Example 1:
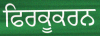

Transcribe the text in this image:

ਫਿਰਕੂਕਰਨ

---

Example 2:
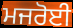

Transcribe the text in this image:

ਮਜਰੋਈ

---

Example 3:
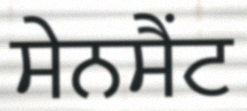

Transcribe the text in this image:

ਸੇਨਸੈਂਟ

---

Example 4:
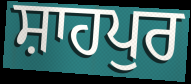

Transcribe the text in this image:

ਸ਼ਾਹਪੁਰ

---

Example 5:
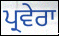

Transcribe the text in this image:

ਪ੍ਰਵੇਰਾ